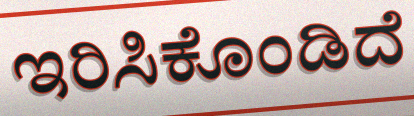
ಇರಿಸಿಕೊಂಡಿದೆ